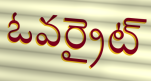
ఓవర్రైట్